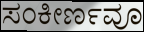
ಸಂಕೀರ್ಣವೂ